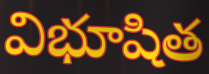
విభూషిత